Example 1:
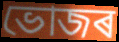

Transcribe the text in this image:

ভোজৰ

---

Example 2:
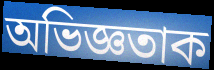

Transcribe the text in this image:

অভিজ্ঞতাক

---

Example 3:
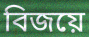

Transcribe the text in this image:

বিজয়ে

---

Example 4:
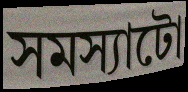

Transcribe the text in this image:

সমস্যাটো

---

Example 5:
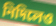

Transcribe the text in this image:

নিদিলেও